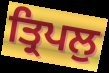
ਤ੍ਰਿਪਲੁ